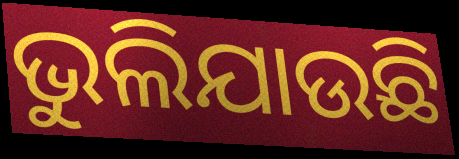
ଭୁଲିଯାଉଛି